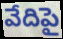
వేదిపై